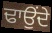
ਢਾਉਂਦੇ